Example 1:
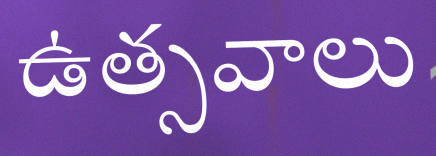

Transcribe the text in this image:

ఉత్సవాలు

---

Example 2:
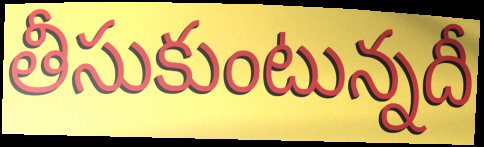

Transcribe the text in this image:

తీసుకుంటున్నదీ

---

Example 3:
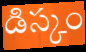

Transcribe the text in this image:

డిస్కం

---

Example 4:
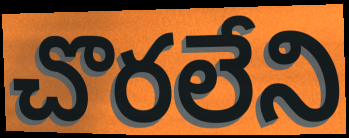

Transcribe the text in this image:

చొరలేని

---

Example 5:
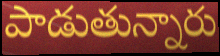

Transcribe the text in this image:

పాడుతున్నారు